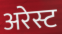
अरेस्ट